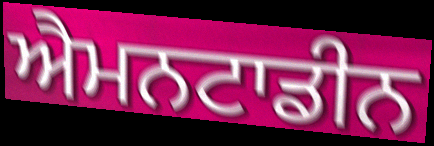
ਐਮਨਟਾਡੀਨ